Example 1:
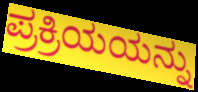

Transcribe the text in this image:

ಪ್ರಕ್ರಿಯಯನ್ನು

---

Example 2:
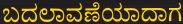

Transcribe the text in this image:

ಬದಲಾವಣೆಯಾದಾಗ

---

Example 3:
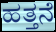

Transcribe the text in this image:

ಹತ್ತನೆ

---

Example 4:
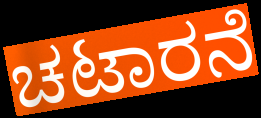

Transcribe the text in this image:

ಚಟಾರನೆ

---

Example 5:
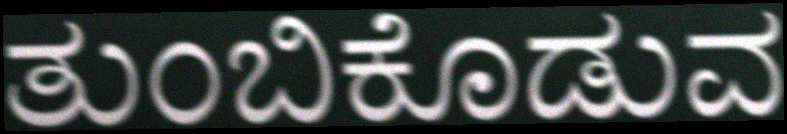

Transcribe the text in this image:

ತುಂಬಿಕೊಡುವ